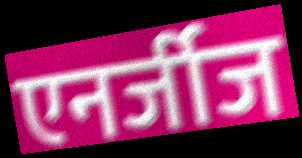
एनर्जीज